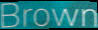
Brown